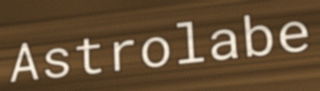
Astrolabe